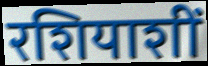
रशियाशीं